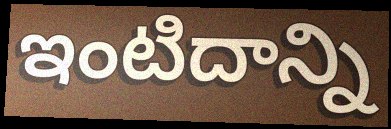
ఇంటిదాన్ని